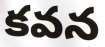
కవన